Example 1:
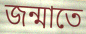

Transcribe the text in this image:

জন্মাতে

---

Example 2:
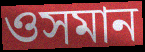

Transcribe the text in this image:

ওসমান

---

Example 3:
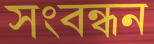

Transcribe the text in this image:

সংবন্ধন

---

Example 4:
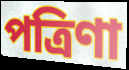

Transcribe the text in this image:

পত্রিণা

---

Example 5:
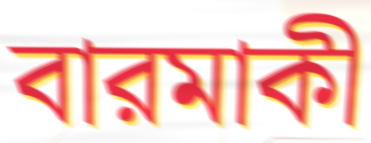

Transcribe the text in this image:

বারমাকী